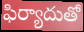
ఫిర్యాదుతో